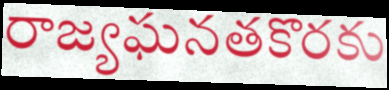
రాజ్యఘనతకొరకు